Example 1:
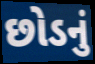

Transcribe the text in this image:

છોડનું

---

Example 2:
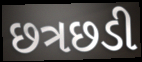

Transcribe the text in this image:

છત્રછડી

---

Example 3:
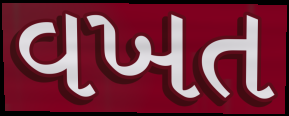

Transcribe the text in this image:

વખત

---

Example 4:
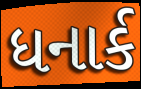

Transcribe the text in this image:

ધનાર્ક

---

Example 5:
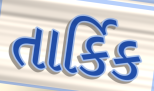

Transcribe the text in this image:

તાર્કિક